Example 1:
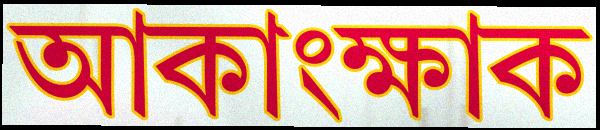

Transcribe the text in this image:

আকাংক্ষাক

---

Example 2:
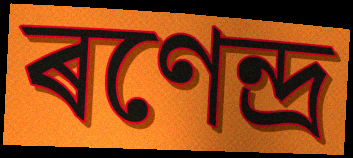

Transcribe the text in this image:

ৰণেন্দ্ৰ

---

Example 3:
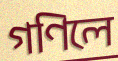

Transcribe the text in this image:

গণিলে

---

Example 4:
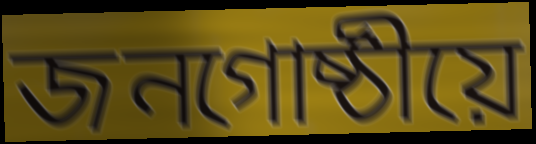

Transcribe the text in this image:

জনগোষ্ঠীয়ে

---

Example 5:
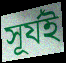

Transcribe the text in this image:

সূৰ্যই